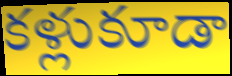
కళ్లుకూడా